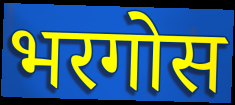
भरगोस